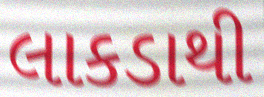
લાકડાથી